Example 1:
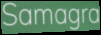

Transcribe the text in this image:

Samagra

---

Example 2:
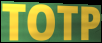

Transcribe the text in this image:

TOTP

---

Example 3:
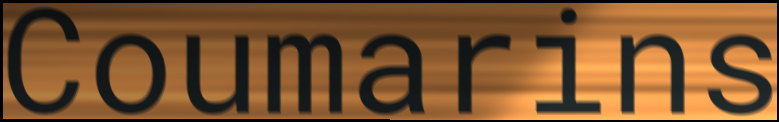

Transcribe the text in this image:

Coumarins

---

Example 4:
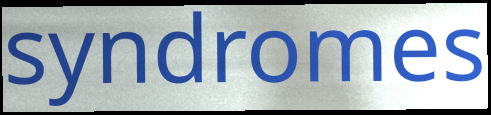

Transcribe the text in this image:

syndromes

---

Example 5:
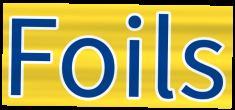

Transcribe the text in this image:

Foils